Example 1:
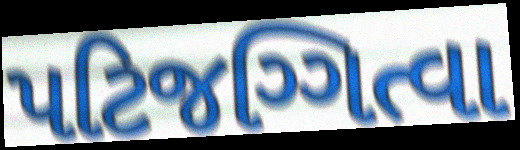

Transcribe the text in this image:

પટિજગ્ગિત્વા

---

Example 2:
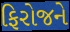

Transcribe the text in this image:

ફિરોજને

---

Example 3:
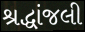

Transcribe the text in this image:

શ્રદ્ધાંજલી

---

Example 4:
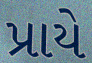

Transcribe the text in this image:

પ્રાયે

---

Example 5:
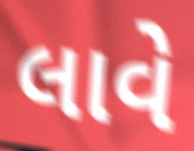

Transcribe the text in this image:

લાવે